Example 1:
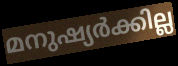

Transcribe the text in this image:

മനുഷ്യർക്കില്ല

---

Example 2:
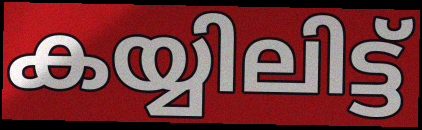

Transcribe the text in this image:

കയ്യിലിട്ട്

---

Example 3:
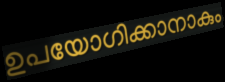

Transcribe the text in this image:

ഉപയോഗിക്കാനാകും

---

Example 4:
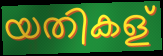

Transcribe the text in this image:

യതികള്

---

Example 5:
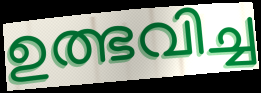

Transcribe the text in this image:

ഉത്ഭവിച്ച